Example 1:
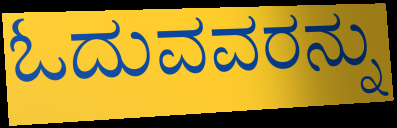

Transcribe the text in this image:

ಓದುವವರನ್ನು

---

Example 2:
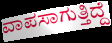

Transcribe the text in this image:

ವಾಪಸಾಗುತ್ತಿದ್ದೆ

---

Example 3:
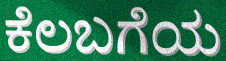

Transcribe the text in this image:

ಕೆಲಬಗೆಯ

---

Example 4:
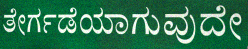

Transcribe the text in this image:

ತೇರ್ಗಡೆಯಾಗುವುದೇ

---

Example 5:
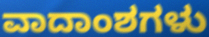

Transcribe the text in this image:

ವಾದಾಂಶಗಳು